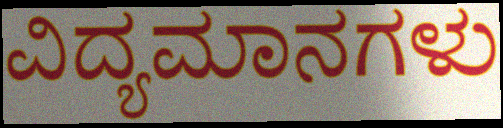
ವಿದ್ಯಮಾನಗಳು